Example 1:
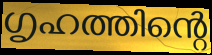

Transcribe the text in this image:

ഗൃഹത്തിന്റെ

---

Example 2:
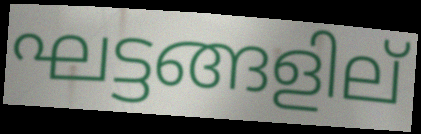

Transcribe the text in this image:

ഘട്ടങ്ങളില്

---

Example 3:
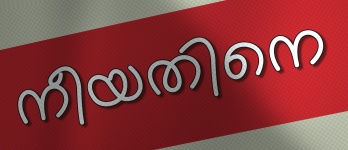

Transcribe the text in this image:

നീയതിനെ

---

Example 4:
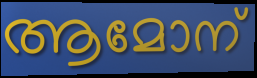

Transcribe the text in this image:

ആമോന്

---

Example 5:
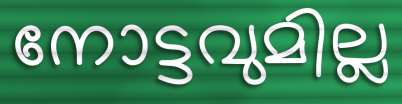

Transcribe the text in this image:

നോട്ടവുമില്ല